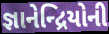
જ્ઞાનેન્દ્રિયોની